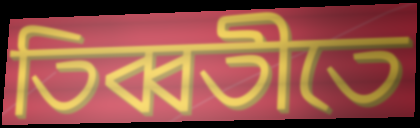
তিব্বতীতে